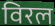
विरल